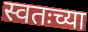
स्वतःच्या